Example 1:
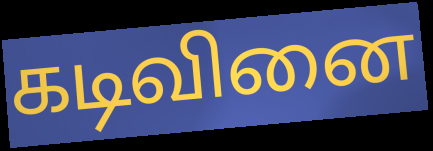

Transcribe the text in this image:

கடிவினை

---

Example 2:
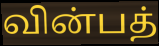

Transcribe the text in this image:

வின்பத்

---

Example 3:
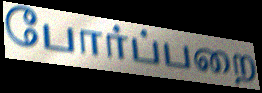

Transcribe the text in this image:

போர்ப்பறை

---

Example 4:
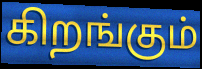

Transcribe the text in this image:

கிறங்கும்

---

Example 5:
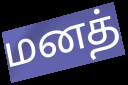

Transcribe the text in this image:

மனத்